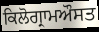
ਕਿਲੋਗ੍ਰਾਮਔਸਤ